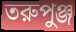
তরুপুঞ্জ